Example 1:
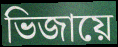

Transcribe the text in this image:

ভিজায়ে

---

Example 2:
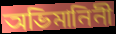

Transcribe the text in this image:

অভিমানিনী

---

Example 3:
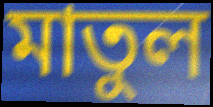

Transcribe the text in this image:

মাতুল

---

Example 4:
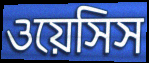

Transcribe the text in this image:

ওয়েসিস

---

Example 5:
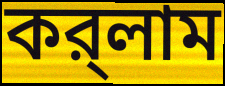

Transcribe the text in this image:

কর্‌লাম